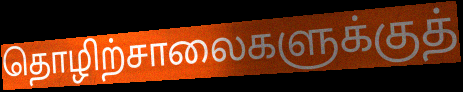
தொழிற்சாலைகளுக்குத்